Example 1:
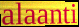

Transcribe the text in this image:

alaanti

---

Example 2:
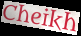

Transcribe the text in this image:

Cheikh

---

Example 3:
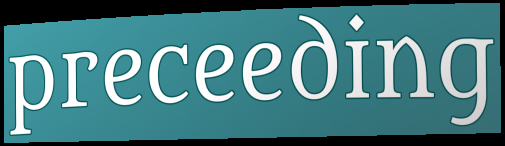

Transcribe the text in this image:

preceeding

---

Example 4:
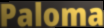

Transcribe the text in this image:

Paloma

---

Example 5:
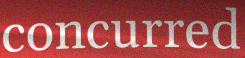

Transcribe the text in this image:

concurred